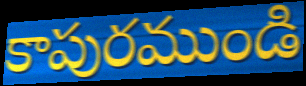
కాపురముండి